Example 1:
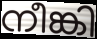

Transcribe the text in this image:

നീങ്കി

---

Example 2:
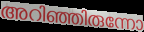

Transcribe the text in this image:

അറിഞ്ഞിരുന്നോ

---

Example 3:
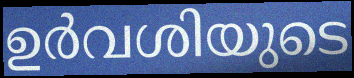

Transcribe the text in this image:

ഉർവശിയുടെ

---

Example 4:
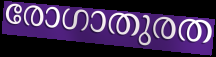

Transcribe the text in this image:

രോഗാതുരത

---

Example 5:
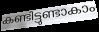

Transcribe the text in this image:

കണ്ടിട്ടുണ്ടാകാം